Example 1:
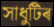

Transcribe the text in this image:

সাধুটিৰ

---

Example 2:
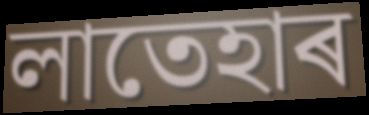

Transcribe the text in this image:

লাতেহাৰ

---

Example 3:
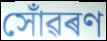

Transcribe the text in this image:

সোঁৱৰণ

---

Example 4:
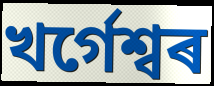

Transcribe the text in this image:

খৰ্গেশ্বৰ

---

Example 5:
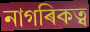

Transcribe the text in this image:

নাগৰিকত্ব